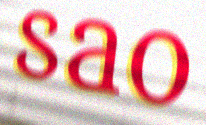
sao